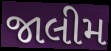
જાલીમ